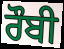
ਰੌਬੀ